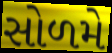
સોળમે